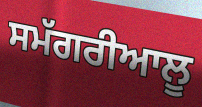
ਸਮੱਗਰੀਆਲੂ